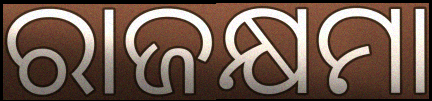
ରାଜକ୍ଷମା